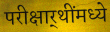
परीक्षार्थींमध्ये